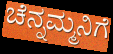
ಚೆನ್ನಮ್ಮನಿಗೆ